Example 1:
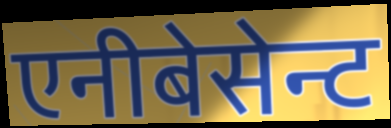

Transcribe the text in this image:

एनीबेसेन्ट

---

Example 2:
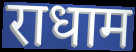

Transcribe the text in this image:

राधाम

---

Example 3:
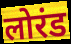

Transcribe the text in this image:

लोरंड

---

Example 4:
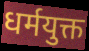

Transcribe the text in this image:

धर्मयुक्त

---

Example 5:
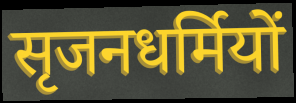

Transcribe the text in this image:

सृजनधर्मियों